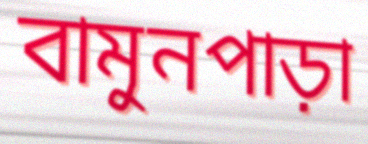
বামুনপাড়া